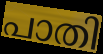
പാതി